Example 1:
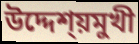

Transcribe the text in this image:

উদ্দেশ্য়মুখী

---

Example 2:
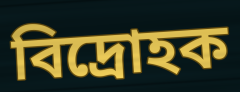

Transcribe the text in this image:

বিদ্ৰোহক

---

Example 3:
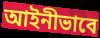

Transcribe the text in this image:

আইনীভাবে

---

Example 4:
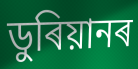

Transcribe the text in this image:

ডুৰিয়ানৰ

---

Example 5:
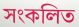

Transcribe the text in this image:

সংকলিত